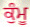
ਕੁੰਮੂ